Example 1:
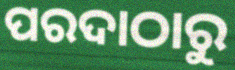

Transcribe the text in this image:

ପରଦାଠାରୁ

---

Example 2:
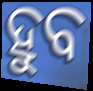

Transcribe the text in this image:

ହୁବ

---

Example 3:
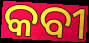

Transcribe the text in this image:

କବୀ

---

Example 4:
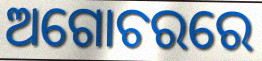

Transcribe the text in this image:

ଅଗୋଚରରେ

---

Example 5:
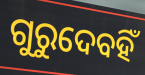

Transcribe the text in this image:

ଗୁରୁଦେବହିଁ